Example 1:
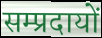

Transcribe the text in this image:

सम्प्रदायों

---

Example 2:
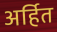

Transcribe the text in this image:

अर्हित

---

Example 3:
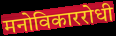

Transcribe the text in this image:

मनोविकाररोधी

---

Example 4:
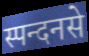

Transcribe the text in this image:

स्पन्दनसे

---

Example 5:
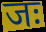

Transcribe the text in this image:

जः